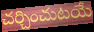
చర్చించుటయే